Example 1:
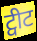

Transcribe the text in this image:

ट्वीट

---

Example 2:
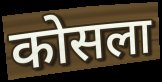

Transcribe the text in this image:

कोसला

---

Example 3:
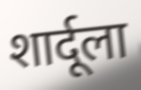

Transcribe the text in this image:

शार्दूला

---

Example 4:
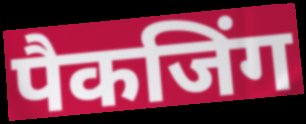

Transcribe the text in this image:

पैकजिंग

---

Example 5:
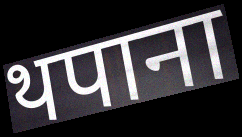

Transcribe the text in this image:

थपाना